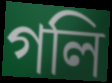
গলি